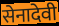
सेनादेवी